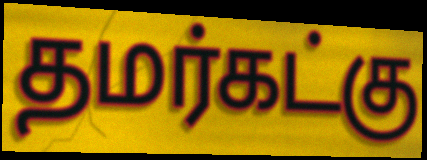
தமர்கட்கு